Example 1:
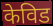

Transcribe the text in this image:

केविड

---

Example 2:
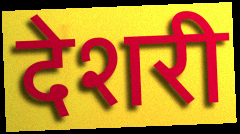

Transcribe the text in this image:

देशरी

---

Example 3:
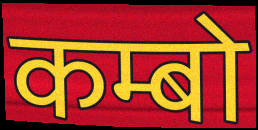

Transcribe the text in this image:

कम्बो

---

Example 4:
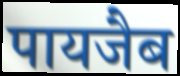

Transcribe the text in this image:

पायजैब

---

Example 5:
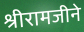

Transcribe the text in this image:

श्रीरामजीने